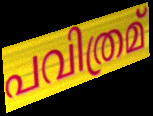
പവിത്രമ്